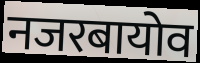
नजरबायोव